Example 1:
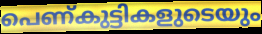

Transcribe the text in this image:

പെണ്കുട്ടികളുടെയും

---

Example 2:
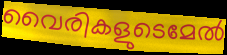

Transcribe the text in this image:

വൈരികളുടെമേൽ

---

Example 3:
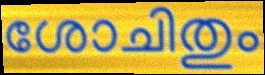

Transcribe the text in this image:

ശോചിതും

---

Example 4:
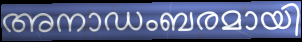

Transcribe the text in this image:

അനാഡംബരമായി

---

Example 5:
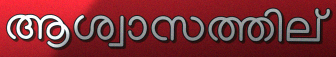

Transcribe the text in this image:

ആശ്വാസത്തില്